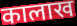
कालाख